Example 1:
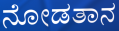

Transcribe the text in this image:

ನೋಡತಾನ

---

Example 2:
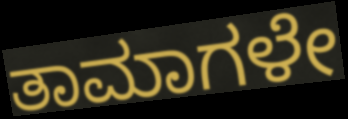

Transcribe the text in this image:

ತಾಮಾಗಳೇ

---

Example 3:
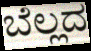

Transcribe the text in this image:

ಬೆಲ್ಲದ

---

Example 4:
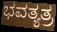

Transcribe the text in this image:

ಭವತ್ಯತ್ರ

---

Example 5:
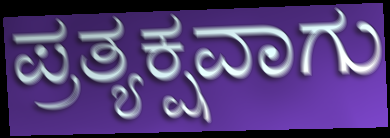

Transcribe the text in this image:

ಪ್ರತ್ಯಕ್ಷವಾಗು